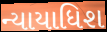
ન્યાયાધિશ